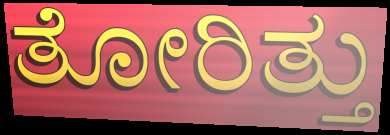
ತೋರಿತ್ತು